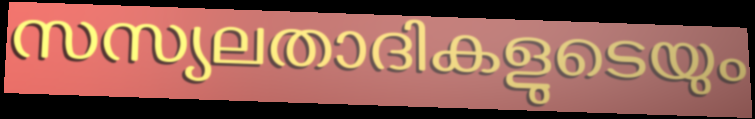
സസ്യലതാദികളുടെയും